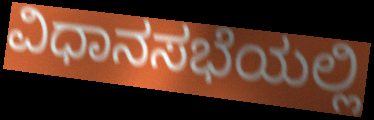
ವಿಧಾನಸಭೆಯಲ್ಲಿ